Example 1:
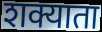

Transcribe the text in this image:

शक्याता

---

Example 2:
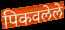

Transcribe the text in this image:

पिकवलेले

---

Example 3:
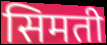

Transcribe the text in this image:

सिमती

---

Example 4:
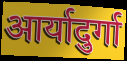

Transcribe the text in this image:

आर्यादुर्गा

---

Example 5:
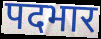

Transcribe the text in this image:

पदभार